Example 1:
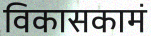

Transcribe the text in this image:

विकासकामं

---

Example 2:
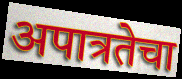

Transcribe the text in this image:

अपात्रतेचा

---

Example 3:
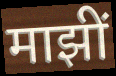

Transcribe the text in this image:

माझीं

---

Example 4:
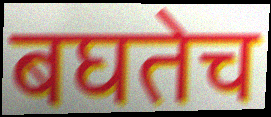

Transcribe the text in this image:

बघतेच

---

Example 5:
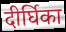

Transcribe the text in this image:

दीर्घिका